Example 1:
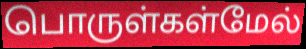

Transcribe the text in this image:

பொருள்கள்மேல்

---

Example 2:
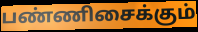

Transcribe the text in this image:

பண்ணிசைக்கும்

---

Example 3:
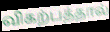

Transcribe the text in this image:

விகற்பத்தால்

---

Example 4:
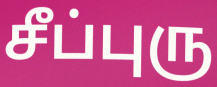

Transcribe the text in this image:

சீப்புரு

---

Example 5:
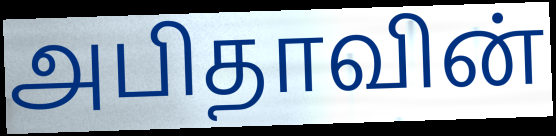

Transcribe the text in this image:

அபிதாவின்